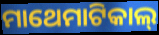
ମାଥେମାଟିକାଲ୍